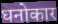
धनोकार